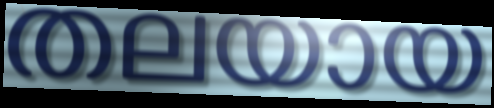
തലയായ